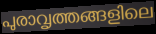
പുരാവൃത്തങ്ങളിലെ